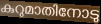
കുറുമാതിനോടു